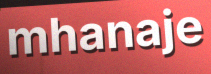
mhanaje